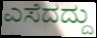
ಎಸೆದದ್ದು